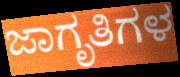
ಜಾಗೃತಿಗಳ